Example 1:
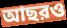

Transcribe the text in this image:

আছরও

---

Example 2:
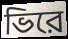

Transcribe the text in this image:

ভিরে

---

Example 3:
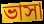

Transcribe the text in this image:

ভাসা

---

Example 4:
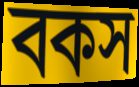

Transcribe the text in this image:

বকস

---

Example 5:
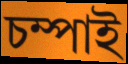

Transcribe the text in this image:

চম্পাই